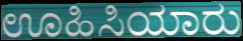
ಊಹಿಸಿಯಾರು